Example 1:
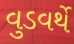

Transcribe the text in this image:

વુડવર્થે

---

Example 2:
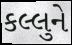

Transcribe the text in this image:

કલ્લુને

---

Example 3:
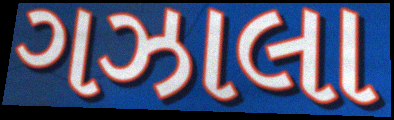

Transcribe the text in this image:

ગઝાલા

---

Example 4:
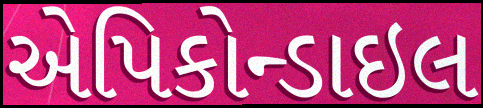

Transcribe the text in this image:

એપિકોન્ડાઇલ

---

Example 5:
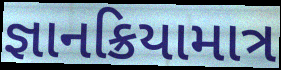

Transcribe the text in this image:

જ્ઞાનક્રિયામાત્ર